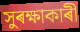
সুৰক্ষাকাৰী